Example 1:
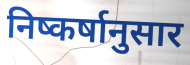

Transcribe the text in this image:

निष्कर्षानुसार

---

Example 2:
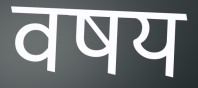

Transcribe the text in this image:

वषय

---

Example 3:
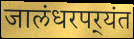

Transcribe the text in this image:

जालंधरपर्यंत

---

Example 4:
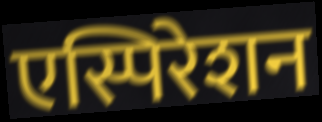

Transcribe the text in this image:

एस्पिरेशन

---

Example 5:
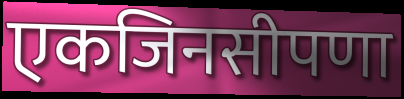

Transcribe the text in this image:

एकजिनसीपणा